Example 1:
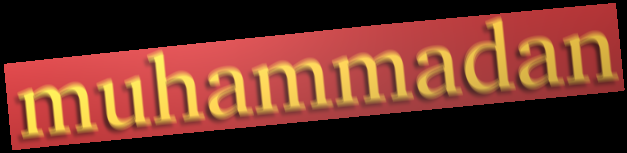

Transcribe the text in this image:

muhammadan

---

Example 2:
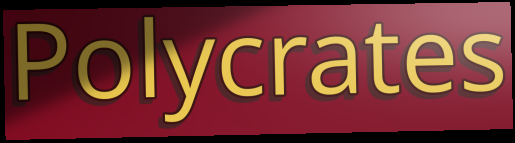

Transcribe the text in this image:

Polycrates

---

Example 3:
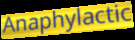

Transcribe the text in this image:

Anaphylactic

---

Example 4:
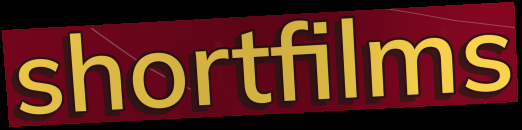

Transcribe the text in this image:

shortfilms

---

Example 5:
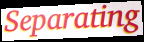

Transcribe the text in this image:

Separating